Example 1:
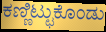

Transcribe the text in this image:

ಕಣ್ಣಿಟ್ಟುಕೊಂಡು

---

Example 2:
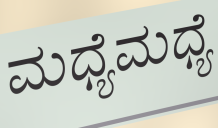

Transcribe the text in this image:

ಮಧ್ಯೆಮಧ್ಯೆ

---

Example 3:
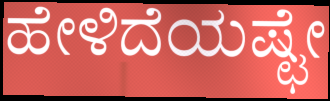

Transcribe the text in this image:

ಹೇಳಿದೆಯಷ್ಟೇ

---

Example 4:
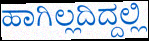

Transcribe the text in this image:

ಹಾಗಿಲ್ಲದಿದ್ದಲ್ಲಿ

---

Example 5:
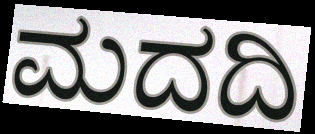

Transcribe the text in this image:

ಮದದಿ